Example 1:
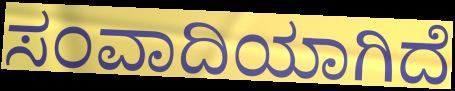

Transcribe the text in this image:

ಸಂವಾದಿಯಾಗಿದೆ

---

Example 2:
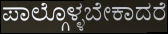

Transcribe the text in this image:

ಪಾಲ್ಗೊಳ್ಳಬೇಕಾದರೆ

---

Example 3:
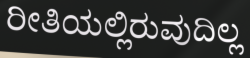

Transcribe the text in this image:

ರೀತಿಯಲ್ಲಿರುವುದಿಲ್ಲ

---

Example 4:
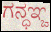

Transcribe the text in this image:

ಗನ್ಧಞ್ಚ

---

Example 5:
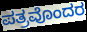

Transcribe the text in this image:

ಪತ್ರವೊಂದರ